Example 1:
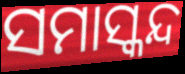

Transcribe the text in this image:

ସମାସ୍କନ୍ଦ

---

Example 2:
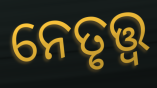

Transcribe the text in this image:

ନେତୃତ୍ତ୍ୱ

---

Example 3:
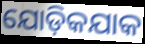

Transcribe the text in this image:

ଯୋଡ଼ିକଯାକ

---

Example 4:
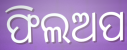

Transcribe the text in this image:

ଫିଲଅପ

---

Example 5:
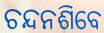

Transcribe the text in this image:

ଚନ୍ଦନଶିବେ